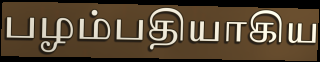
பழம்பதியாகிய